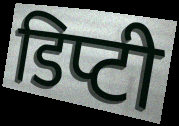
डिप्‍टी